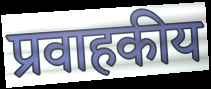
प्रवाहकीय